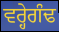
ਵਰ੍ਹੇਗੰਢ